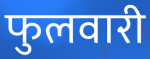
फुलवारी